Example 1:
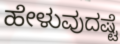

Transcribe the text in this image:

ಹೇಳುವುದಷ್ಟೆ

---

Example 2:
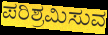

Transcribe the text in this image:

ಪರಿಶ್ರಮಿಸುವ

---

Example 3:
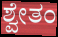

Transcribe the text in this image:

ಶ್ವೇತಂ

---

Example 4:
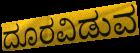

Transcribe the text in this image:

ದೂರವಿಡುವ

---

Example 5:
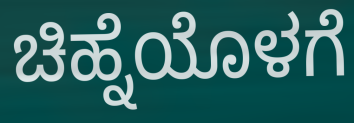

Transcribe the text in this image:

ಚಿಹ್ನೆಯೊಳಗೆ